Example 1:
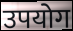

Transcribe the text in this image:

उपयोग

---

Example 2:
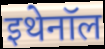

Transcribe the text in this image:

इथेनॉल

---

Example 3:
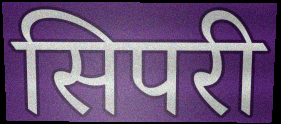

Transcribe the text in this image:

सिपरी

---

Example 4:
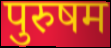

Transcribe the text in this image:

पुरुषम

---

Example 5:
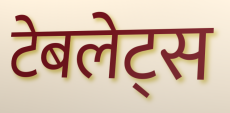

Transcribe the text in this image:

टेबलेट्स